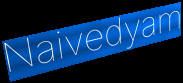
Naivedyam